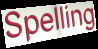
Spelling